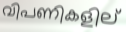
വിപണികളില്